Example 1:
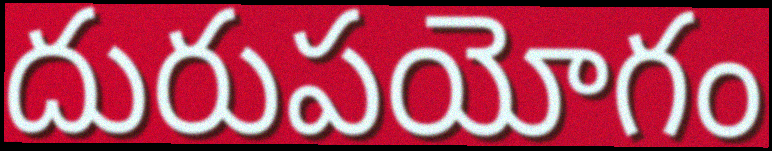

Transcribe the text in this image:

దురుపయోగం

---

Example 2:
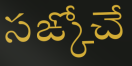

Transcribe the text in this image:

సఙ్కోచే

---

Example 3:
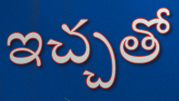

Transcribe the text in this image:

ఇచ్చతో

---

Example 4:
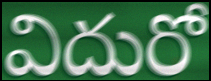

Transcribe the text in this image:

విదురో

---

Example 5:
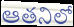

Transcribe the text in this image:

ఆతనిలో